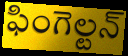
ఫింగెల్టన్